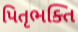
પિતૃભક્તિ